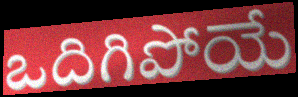
ఒదిగిపోయే